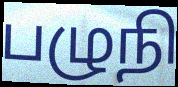
பழுநி